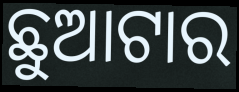
ଛୁଆଟାର